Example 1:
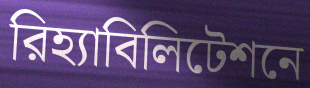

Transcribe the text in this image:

রিহ্যাবিলিটেশনে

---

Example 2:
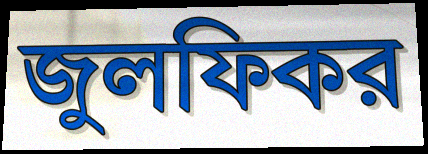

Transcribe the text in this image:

জুলফিকর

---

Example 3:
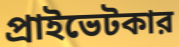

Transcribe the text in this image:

প্রাইভেটকার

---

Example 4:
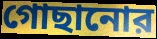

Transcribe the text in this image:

গোছানোর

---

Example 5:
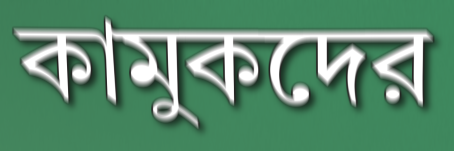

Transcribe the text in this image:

কামুকদের